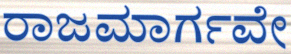
ರಾಜಮಾರ್ಗವೇ